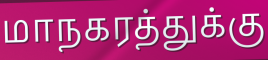
மாநகரத்துக்கு